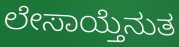
ಲೇಸಾಯ್ತೆನುತ